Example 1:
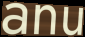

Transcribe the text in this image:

anu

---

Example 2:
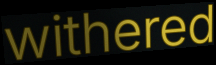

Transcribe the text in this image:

withered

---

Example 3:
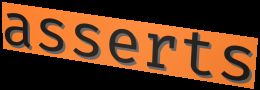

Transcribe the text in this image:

asserts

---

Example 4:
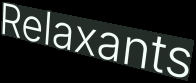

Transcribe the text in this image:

Relaxants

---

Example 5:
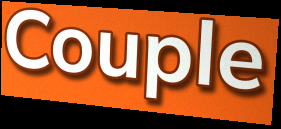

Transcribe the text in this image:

Couple